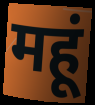
महूं